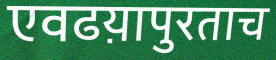
एवढय़ापुरताच